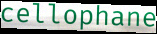
cellophane